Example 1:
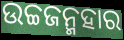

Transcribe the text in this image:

ଉଚ୍ଚଜନ୍ମହାର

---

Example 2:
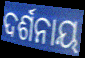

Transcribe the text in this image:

ଦର୍ଶନାୟ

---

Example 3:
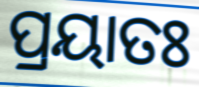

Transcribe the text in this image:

ପ୍ରୟାତଃ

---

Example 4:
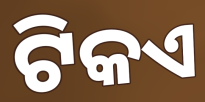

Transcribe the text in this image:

ଟିକଏ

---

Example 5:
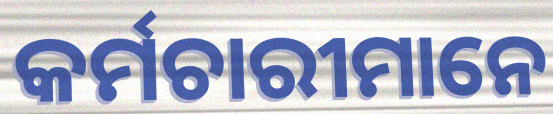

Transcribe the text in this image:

କର୍ମଚାରୀମାନେ